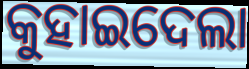
କୁହାଇଦେଲା